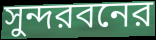
সুন্দরবনের